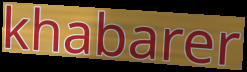
khabarer